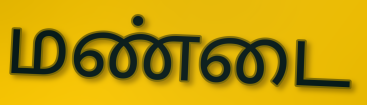
மண்டை